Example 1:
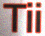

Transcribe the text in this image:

Tii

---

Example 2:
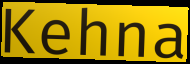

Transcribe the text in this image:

Kehna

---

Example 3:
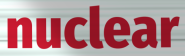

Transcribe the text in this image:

nuclear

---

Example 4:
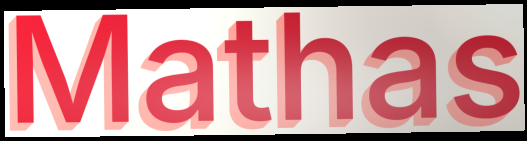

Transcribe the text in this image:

Mathas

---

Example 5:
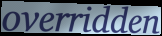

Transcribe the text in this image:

overridden